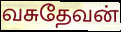
வசுதேவன்